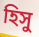
হিসু